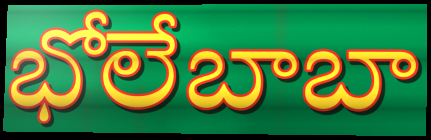
భోలేబాబా